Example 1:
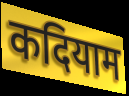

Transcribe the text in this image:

कदियाम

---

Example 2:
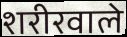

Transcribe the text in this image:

शरीरवाले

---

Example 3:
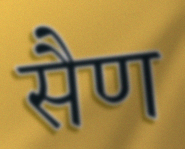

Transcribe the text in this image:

सैण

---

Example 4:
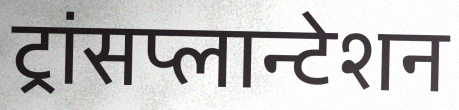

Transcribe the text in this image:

ट्रांसप्लान्टेशन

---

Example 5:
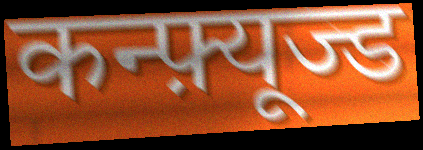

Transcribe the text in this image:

कन्फ़्यूज्ड